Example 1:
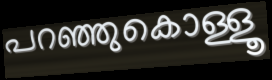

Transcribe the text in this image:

പറഞ്ഞുകൊള്ളൂ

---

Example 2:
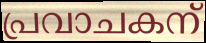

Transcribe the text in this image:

പ്രവാചകന്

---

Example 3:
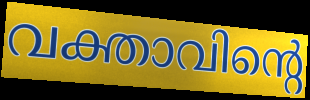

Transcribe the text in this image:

വക്താവിന്റെ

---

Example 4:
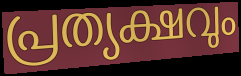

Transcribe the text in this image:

പ്രത്യക്ഷവും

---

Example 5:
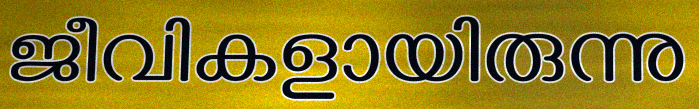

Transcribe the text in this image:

ജീവികളായിരുന്നു